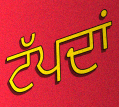
ਟੱਪਦਾਂ